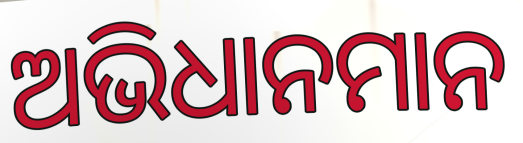
ଅଭିଧାନମାନ